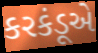
કરકંડૂએ